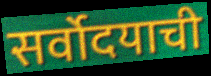
सर्वोदयाची